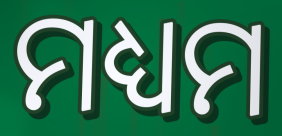
ମଧ୍ୟମ